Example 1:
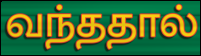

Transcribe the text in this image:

வந்ததால்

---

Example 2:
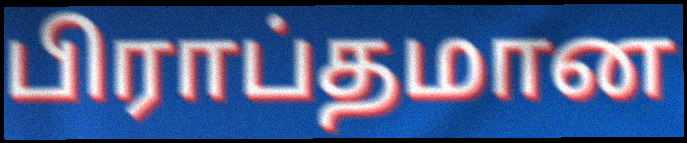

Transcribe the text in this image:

பிராப்தமான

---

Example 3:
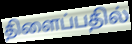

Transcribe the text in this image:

திளைப்பதில்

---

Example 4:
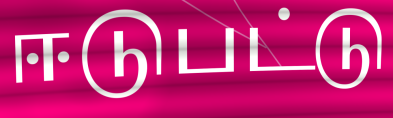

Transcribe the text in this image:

ஈடுபட்டு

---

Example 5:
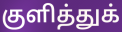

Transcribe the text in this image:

குளித்துக்